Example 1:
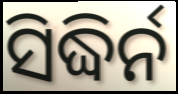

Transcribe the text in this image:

ସିଦ୍ଧିର୍ନ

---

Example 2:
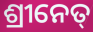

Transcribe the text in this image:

ଶ୍ରୀନେତ୍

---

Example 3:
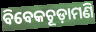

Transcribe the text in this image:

ବିବେକଚୂଡ଼ାମଣି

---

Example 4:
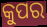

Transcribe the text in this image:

କୁପର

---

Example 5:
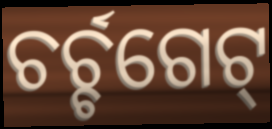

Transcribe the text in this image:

ଚର୍ଚ୍ଚଗେଟ୍